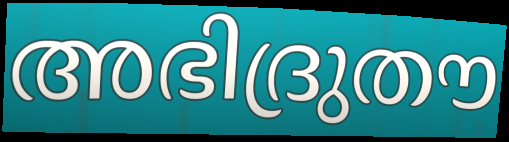
അഭിദ്രുതൗ